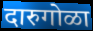
दारुगोळा